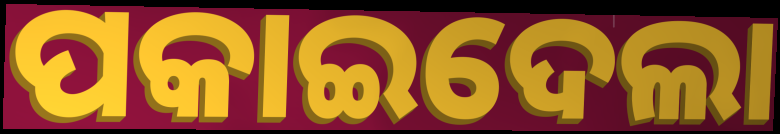
ପକାଇଦେଲା